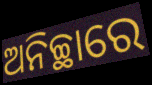
ଅନିଚ୍ଛାରେ